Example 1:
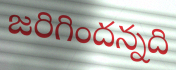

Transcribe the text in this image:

జరిగిందన్నది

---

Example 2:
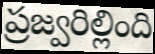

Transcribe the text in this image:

ప్రజ్వరిల్లింది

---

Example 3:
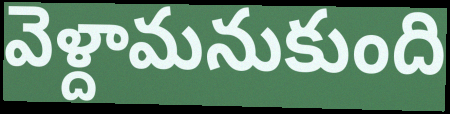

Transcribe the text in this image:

వెళ్దామనుకుంది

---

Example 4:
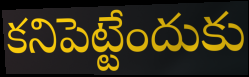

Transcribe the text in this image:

కనిపెట్టేందుకు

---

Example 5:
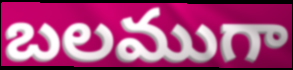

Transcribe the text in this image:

బలముగా